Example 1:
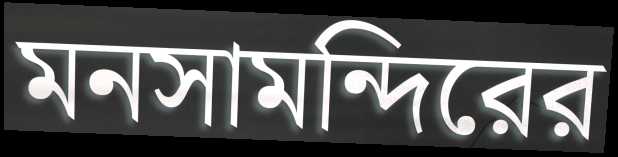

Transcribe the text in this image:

মনসামন্দিরের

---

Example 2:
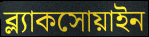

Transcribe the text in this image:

ব্ল্যাকসোয়াইন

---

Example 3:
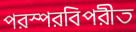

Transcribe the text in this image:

পরস্পরবিপরীত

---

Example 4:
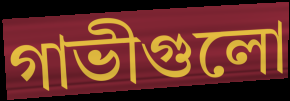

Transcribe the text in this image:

গাভীগুলো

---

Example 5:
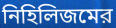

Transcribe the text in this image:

নিহিলিজমের